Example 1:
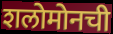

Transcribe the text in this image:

शलोमोनची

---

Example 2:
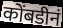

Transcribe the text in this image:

कोंबडीनं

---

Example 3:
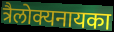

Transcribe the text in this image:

त्रैलोक्यनायका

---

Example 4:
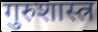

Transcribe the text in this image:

गुरुशास्त्र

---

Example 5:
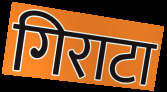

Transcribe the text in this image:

गिराटा